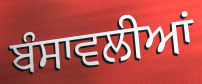
ਬੰਸਾਵਲੀਆਂ